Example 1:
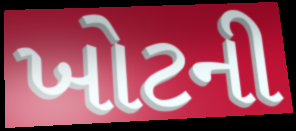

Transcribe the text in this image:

ખોટની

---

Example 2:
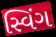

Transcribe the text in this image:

સ્વિંગ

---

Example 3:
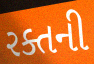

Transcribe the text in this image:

રક્તની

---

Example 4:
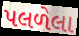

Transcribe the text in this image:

પલળેલા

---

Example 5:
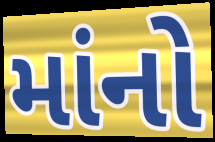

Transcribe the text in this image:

માંનો